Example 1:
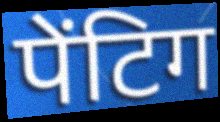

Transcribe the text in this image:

पेंटिग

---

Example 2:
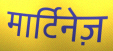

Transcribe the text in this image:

मार्टिनेज़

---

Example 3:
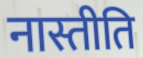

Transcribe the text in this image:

नास्तीति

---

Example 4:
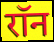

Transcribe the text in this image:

रॉन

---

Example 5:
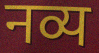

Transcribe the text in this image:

नव्य